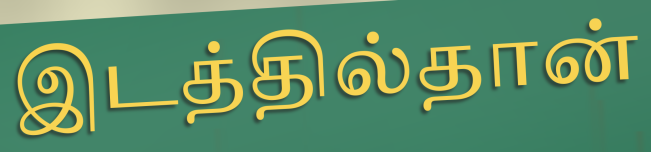
இடத்தில்தான்